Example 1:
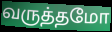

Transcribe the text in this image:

வருத்தமோ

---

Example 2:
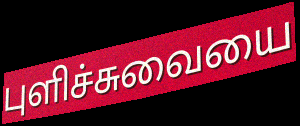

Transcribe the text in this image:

புளிச்சுவையை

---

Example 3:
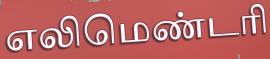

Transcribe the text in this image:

எலிமெண்டரி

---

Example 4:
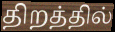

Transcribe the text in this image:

திறத்தில்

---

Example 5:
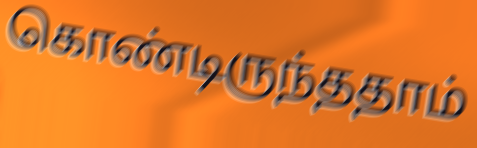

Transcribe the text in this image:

கொண்டிருந்ததாம்